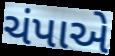
ચંપાએ